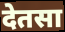
देतसा